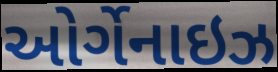
ઓર્ગેનાઇઝ